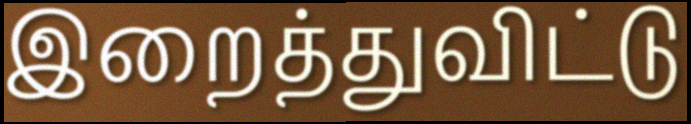
இறைத்துவிட்டு